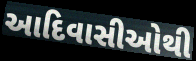
આદિવાસીઓથી